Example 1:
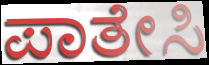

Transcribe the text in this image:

ಪಾತೇಸಿ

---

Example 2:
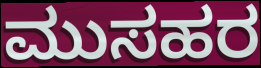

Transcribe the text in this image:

ಮುಸಹರ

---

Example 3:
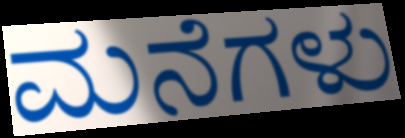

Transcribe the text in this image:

ಮನೆಗಳು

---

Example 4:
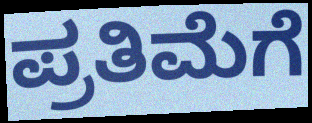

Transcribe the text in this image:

ಪ್ರತಿಮೆಗೆ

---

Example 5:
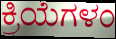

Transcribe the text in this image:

ಕ್ರಿಯೆಗಳಂ